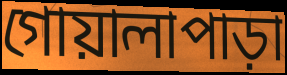
গোয়ালাপাড়া